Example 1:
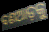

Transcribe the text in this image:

ବଣଆଡ଼କୁ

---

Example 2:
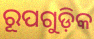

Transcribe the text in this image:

ରୂପଗୁଡ଼ିକ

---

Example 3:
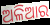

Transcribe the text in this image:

ଅଳିଆର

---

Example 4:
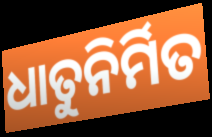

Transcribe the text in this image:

ଧାତୁନିର୍ମିତ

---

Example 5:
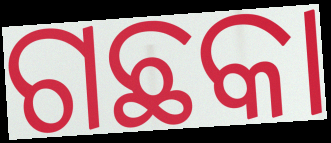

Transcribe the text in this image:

ଗଛକା